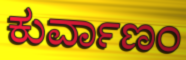
ಕುರ್ವಾಣಂ